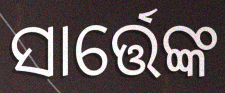
ସାର୍ତ୍ତେଙ୍କ